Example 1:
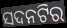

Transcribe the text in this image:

ସଦନଟିର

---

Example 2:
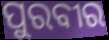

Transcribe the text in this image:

ପୁରବୀର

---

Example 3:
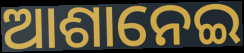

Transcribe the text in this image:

ଆଶାନେଇ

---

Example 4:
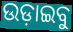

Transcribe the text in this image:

ଉଡ଼ାଇବୁ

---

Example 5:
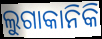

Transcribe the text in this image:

ଲୁଗାକାନିକି